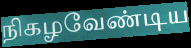
நிகழவேண்டிய